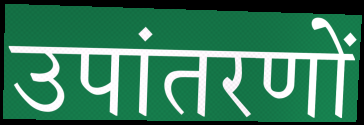
उपांतरणों